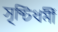
সৃষ্টিধর্মী